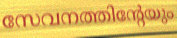
സേവനത്തിന്റേയും